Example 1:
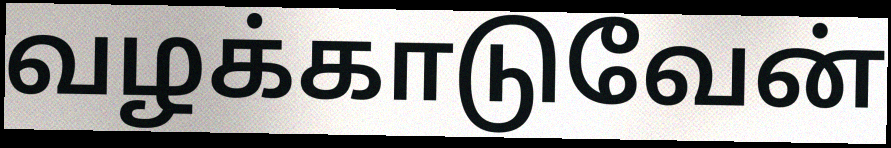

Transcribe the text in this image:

வழக்காடுவேன்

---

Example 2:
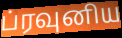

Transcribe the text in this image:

ப்ரவுனிய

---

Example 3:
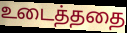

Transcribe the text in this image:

உடைத்ததை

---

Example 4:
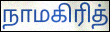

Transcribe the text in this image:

நாமகிரித்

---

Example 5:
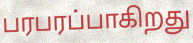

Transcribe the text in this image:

பரபரப்பாகிறது